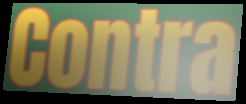
Contra